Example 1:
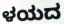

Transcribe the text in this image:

ಳಯದ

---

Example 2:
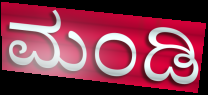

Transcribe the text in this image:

ಮಂಡಿ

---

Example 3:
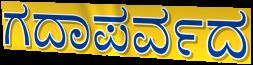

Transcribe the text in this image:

ಗದಾಪರ್ವದ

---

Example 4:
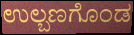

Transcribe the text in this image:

ಉಲ್ಬಣಗೊಂಡ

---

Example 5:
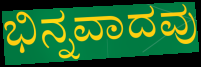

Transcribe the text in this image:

ಭಿನ್ನವಾದವು